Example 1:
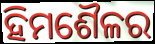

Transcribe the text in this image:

ହିମଶୈଳର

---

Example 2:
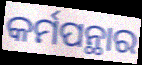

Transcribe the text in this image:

କର୍ମପନ୍ଥାର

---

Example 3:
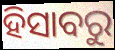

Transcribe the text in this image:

ହିସାବରୁ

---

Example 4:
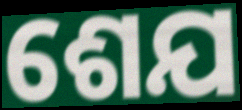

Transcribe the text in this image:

ଶେଯ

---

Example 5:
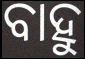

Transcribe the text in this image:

ବାହୁ